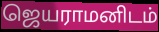
ஜெயராமனிடம்